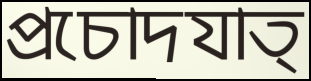
প্রচোদযাত্